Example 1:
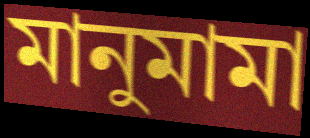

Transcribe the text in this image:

মানুমামা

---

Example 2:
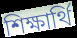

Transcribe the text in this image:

শিক্ষার্থি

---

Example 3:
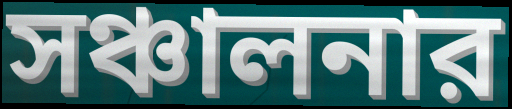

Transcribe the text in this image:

সঞ্চালনার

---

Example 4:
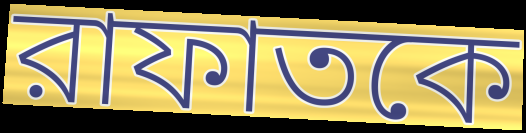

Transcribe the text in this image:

রাফাতকে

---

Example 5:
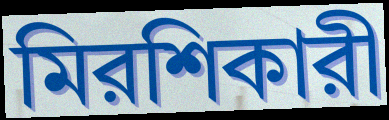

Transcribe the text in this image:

মিরশিকারী